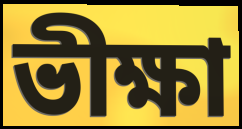
ভীক্ষা